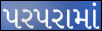
પરપરામાં